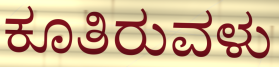
ಕೂತಿರುವಳು